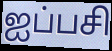
ஐப்பசி